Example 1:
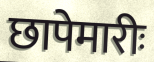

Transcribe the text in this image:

छापेमारीः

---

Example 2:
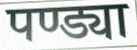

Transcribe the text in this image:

पण्ड्या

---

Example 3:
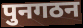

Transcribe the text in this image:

पुनगठन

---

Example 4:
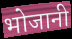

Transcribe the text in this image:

भोजानी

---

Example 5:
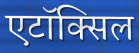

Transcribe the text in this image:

एटॉक्सिल